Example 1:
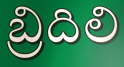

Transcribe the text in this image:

బ్రిదిలి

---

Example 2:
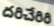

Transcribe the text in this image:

దరిచేరిరి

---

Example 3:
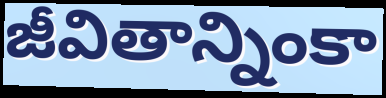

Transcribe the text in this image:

జీవితాన్నింకా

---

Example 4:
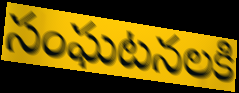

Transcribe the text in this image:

సంఘటనలకి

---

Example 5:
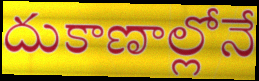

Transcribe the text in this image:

దుకాణాల్లోనే